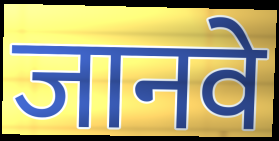
जानवे